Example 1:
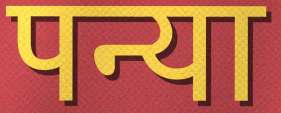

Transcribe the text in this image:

पन्या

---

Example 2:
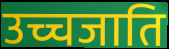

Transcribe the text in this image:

उच्चजाति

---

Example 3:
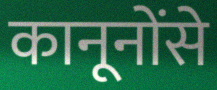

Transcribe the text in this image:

कानूनोंसे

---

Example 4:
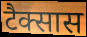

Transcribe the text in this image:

टैक्सास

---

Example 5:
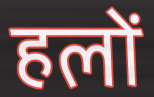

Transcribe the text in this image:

हलों